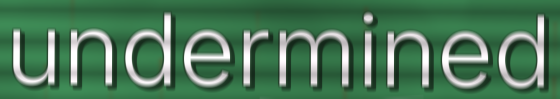
undermined